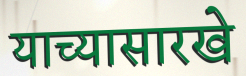
याच्यासारखे